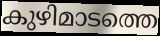
കുഴിമാടത്തെ